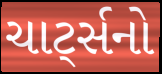
ચાર્ટ્સનો